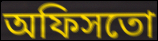
অফিসতো